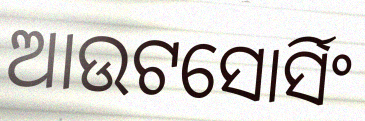
ଆଉଟସୋର୍ସିଂ